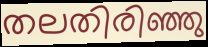
തലതിരിഞ്ഞു